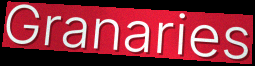
Granaries